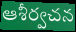
ఆశీర్వచన